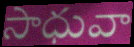
సాధువా